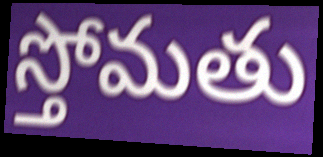
స్తోమతు